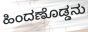
ಹಿಂದಣೊಡ್ಡನು